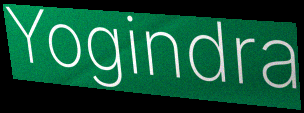
Yogindra